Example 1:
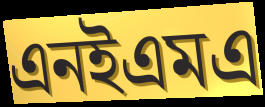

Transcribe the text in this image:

এনইএমএ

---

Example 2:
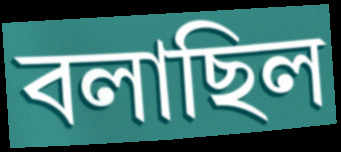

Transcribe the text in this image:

বলাছিল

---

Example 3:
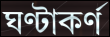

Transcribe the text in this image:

ঘণ্টাকর্ণ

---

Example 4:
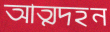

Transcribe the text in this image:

আত্মদহন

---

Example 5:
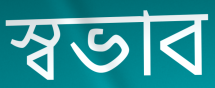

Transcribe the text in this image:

স্বভাব